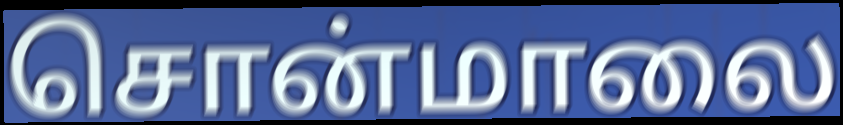
சொன்மாலை